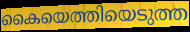
കൈയെത്തിയെടുത്ത